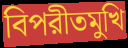
বিপরীতমুখি